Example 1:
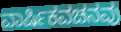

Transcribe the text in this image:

ವಾರ್ಷಿಕವಚನವು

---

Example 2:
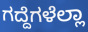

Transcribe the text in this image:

ಗದ್ದೆಗಳೆಲ್ಲಾ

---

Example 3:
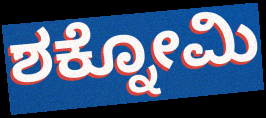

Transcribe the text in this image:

ಶಕ್ನೋಮಿ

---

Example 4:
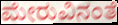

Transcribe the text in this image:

ಮೇರುವಿನಂತೆ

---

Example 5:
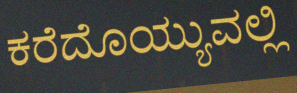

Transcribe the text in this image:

ಕರೆದೊಯ್ಯುವಲ್ಲಿ